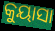
କୁୟାସା